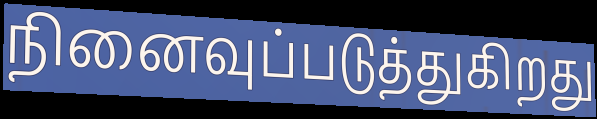
நினைவுப்படுத்துகிறது